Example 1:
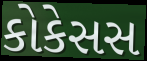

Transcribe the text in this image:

કોકેસસ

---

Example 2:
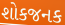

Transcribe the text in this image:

શોકજનક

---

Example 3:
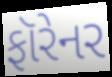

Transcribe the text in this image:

ફૉરેનર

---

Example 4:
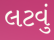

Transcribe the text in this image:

લટવું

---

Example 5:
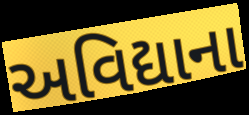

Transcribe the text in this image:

અવિદ્યાના